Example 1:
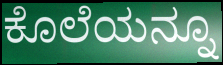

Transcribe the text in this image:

ಕೊಲೆಯನ್ನೂ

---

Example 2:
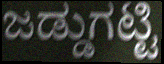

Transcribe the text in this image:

ಜಡ್ಡುಗಟ್ಟಿ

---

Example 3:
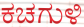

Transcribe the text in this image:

ಕಚಗುಳಿ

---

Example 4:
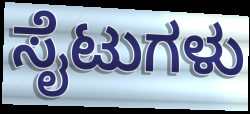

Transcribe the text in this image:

ಸೈಟುಗಳು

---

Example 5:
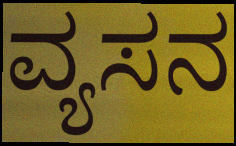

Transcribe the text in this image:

ವ್ಯಸನ